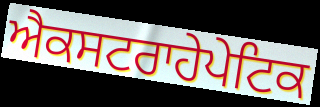
ਐਕਸਟਰਾਹੇਪੇਟਿਕ